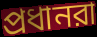
প্রধানরা